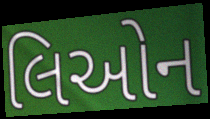
લિઓન